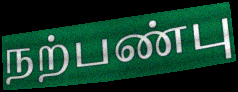
நற்பண்பு